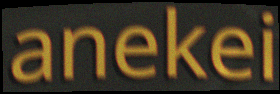
anekei